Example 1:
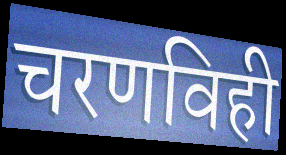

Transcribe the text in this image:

चरणविही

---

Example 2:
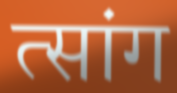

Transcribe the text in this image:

त्सांग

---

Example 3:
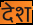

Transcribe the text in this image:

देश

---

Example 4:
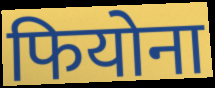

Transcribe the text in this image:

फियोना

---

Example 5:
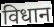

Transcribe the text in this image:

विधान